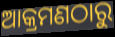
ଆକ୍ରମଣଠାରୁ